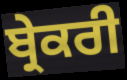
ਬ੍ਰੇਕਰੀ